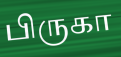
பிருகா